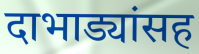
दाभाड्यांसह